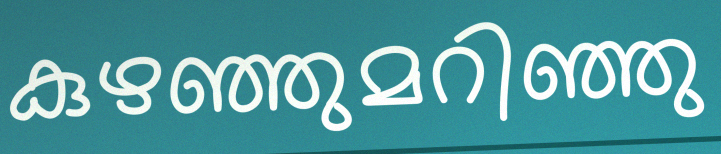
കുഴഞ്ഞുമറിഞ്ഞു